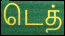
டெத்